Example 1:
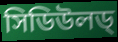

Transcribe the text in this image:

সিডিউলড্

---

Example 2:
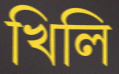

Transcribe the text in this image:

খিলি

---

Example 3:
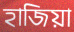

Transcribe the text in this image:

হাজিয়া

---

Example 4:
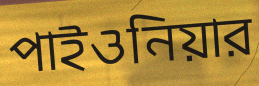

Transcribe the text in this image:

পাইওনিয়ার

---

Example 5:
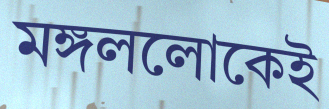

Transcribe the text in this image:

মঙ্গললোকেই